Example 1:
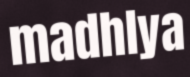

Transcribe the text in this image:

madhlya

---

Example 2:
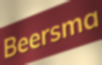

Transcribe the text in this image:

Beersma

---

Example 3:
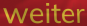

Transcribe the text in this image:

weiter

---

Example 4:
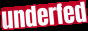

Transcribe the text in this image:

underfed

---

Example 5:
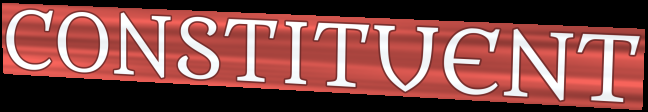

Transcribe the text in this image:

CONSTITUENT